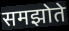
समझोते